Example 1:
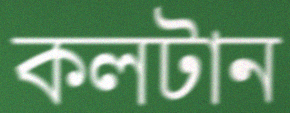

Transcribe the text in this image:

কলটান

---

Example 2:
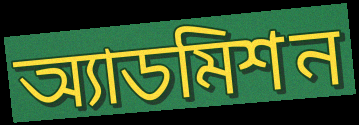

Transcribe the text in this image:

অ্যাডমিশন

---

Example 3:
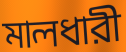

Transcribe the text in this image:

মালধারী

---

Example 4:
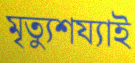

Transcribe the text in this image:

মৃত্যুশয্যাই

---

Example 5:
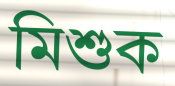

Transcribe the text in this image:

মিশুক